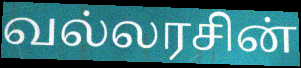
வல்லரசின்